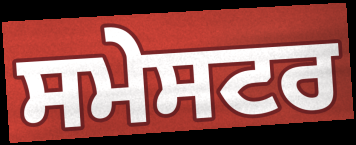
ਸਮੇਸਟਰ